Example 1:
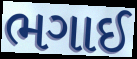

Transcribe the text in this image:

ભગાઈ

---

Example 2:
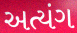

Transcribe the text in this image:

અત્યંગ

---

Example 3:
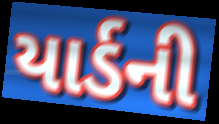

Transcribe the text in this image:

યાર્ડની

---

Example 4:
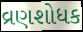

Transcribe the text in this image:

વ્રણશોધક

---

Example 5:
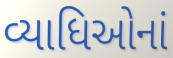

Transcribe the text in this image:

વ્યાધિઓનાં